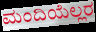
ಮಂದಿಯೆಲ್ಲರ